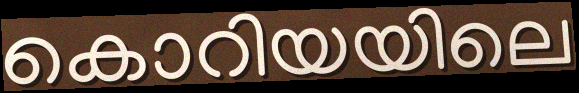
കൊറിയയിലെ